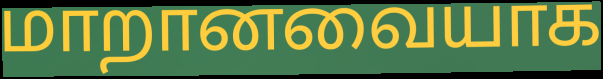
மாறானவையாக